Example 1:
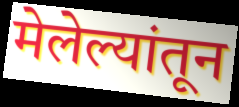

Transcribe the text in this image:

मेलेल्यांतून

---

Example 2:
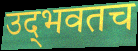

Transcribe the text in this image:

उद्‌भवतच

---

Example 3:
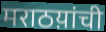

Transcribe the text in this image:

मराठय़ांची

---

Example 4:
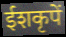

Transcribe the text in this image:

ईशकृपें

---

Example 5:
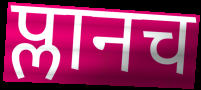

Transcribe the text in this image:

प्लानच